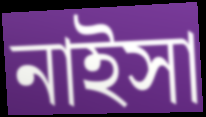
নাইসা